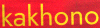
kakhono